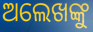
ଅଲେଖଙ୍କୁ